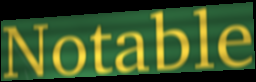
Notable